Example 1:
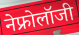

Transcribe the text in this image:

नेफ्रोलॉजी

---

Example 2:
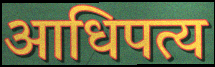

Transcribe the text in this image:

आधिपत्य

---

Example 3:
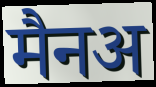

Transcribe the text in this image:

मैनअ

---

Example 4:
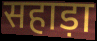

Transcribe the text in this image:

सहाड़ा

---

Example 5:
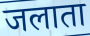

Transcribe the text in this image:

जलाता